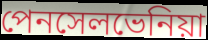
পেনসেলভেনিয়া